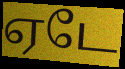
ஏடே